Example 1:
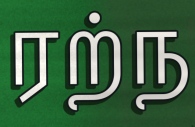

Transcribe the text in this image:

ரற்ந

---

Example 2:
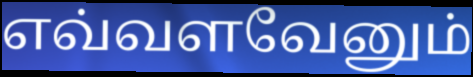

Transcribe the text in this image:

எவ்வளவேனும்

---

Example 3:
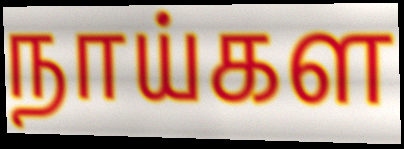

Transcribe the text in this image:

நாய்கள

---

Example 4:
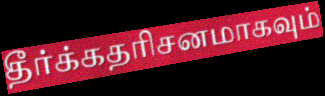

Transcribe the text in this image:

தீர்க்கதரிசனமாகவும்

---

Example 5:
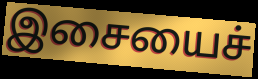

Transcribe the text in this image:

இசையைச்